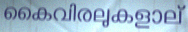
കൈവിരലുകളാല്